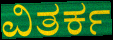
ವಿತರ್ಕ